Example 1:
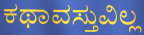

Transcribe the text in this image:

ಕಥಾವಸ್ತುವಿಲ್ಲ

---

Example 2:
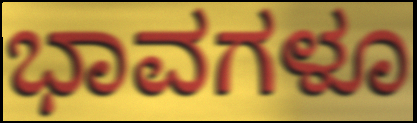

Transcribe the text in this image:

ಭಾವಗಳೂ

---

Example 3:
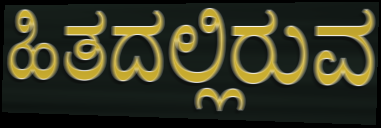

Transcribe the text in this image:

ಹಿತದಲ್ಲಿರುವ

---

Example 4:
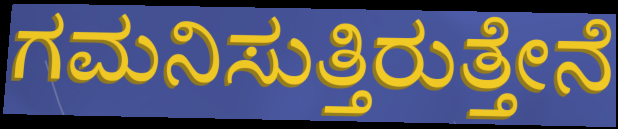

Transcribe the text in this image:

ಗಮನಿಸುತ್ತಿರುತ್ತೇನೆ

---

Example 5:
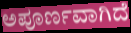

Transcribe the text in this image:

ಅಪೂರ್ಣವಾಗಿದೆ